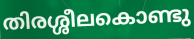
തിരശ്ശീലകൊണ്ടു